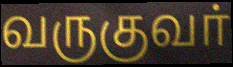
வருகுவர்